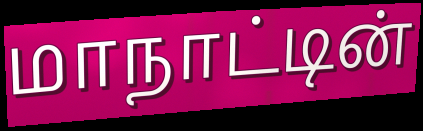
மாநாட்டின்